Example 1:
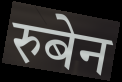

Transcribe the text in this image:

रुबेन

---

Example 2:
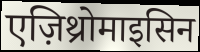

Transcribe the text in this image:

एज़िथ्रोमाइसिन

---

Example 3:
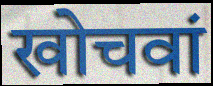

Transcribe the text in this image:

खोचवां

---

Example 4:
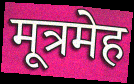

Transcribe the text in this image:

मूत्रमेह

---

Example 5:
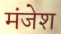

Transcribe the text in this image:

मंजेश